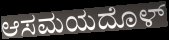
ಆಸಮಯದೊಳ್